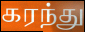
கரந்து